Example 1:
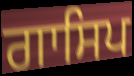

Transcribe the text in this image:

ਗਾਸਿਪ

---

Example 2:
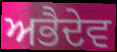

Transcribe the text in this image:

ਅਭੈਦੇਵ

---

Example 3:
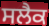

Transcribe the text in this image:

ਸਲੈਕ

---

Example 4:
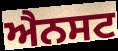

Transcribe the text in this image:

ਐਨਸਟ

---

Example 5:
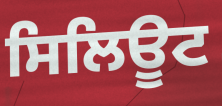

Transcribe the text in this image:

ਸਿਲਿਊਟ